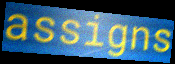
assigns